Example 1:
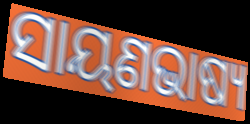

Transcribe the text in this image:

ସାୟଣଭାଷ୍ୟ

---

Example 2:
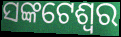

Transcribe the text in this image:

ସଙ୍କଟେଶ୍ୱର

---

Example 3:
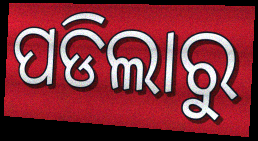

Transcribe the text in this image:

ପଡିଲାରୁ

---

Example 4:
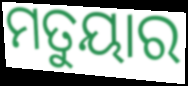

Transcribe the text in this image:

ମତୁୟାର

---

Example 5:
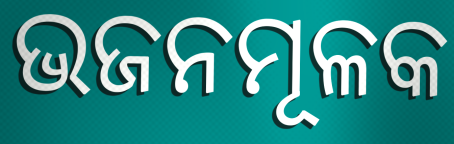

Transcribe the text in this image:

ଭଜନମୂଳକ